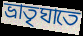
ভ্রাতৃঘাতে